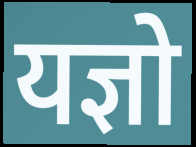
यज्ञो